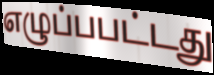
எழுப்பபட்டது